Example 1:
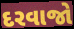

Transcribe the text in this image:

દરવાજો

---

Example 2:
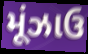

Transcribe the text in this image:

મૂંઝાઉ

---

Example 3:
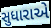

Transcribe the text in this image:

સુધારાએ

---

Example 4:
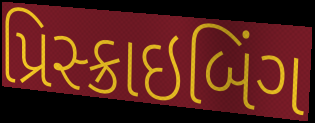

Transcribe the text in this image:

પ્રિસ્ક્રાઇબિંગ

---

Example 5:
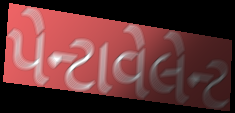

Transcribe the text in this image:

પેન્ટાવેલેન્ટ